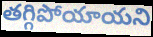
తగ్గిపోయాయని